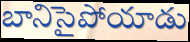
బానిసైపోయాడు